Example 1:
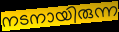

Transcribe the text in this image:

നടനായിരുന്ന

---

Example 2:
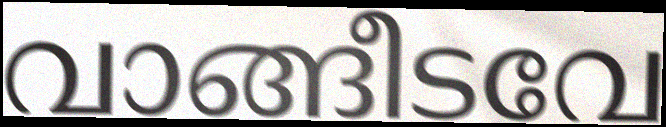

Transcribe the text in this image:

വാങ്ങീടവേ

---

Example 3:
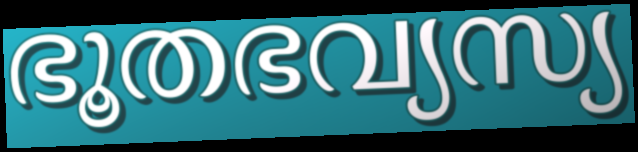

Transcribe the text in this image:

ഭൂതഭവ്യസ്യ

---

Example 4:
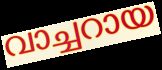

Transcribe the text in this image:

വാച്ചറായ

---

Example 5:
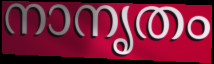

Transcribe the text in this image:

നാനൃതം